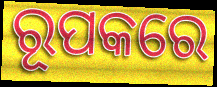
ରୂପକରେ